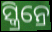
ସ୍କ୍ରିନ୍ରେ